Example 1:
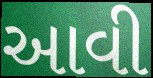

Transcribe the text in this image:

આવી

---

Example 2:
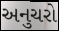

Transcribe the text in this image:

અનુચરો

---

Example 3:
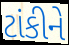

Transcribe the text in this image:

ટાંકીને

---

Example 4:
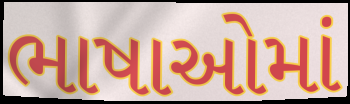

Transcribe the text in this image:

ભાષાઓમાં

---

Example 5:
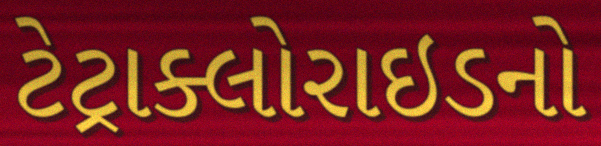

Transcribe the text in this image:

ટેટ્રાક્લોરાઇડનો